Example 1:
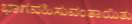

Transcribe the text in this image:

ಭಾಗವಹಿಸುವಂತಾಯಿತು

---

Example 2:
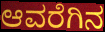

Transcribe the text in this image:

ಆವರೆಗಿನ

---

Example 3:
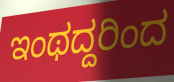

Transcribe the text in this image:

ಇಂಥದ್ದರಿಂದ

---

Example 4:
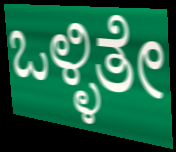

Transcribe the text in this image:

ಒಳ್ಳಿತೇ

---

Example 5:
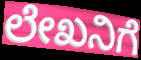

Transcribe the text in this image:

ಲೇಖನಿಗೆ